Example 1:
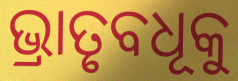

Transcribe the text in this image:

ଭ୍ରାତୃବଧୂକୁ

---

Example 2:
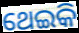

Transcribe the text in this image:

ଥେଇକି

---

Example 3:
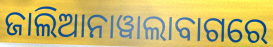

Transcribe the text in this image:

ଜାଲିଆନାୱାଲାବାଗରେ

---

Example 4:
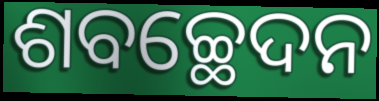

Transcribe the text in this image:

ଶବଚ୍ଛେଦନ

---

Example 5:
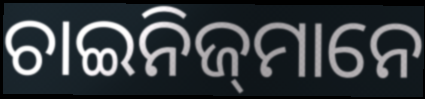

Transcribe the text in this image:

ଚାଇନିଜ୍‍ମାନେ